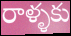
రాళ్ళకు